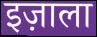
इज़ाला